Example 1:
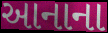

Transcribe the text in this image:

આનાના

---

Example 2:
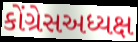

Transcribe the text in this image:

કોંગ્રેસઅધ્યક્ષ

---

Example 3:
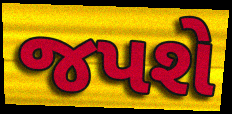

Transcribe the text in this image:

જપશે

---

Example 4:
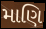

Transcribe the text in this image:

માણિ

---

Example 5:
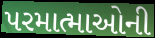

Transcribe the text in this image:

પરમાત્માઓની